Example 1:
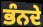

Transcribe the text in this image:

ਭੰਨਦੇ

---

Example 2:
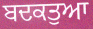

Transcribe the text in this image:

ਬਦਕਤੁਆ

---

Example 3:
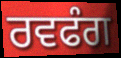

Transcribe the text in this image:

ਰਵਫੰਗ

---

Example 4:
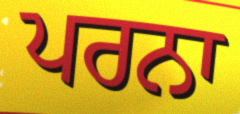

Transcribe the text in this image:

ਪਰਨਾ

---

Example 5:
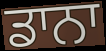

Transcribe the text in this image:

ਡਾਨਾ